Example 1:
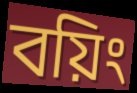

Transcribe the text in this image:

বয়িং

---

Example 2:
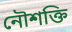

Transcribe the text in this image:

নৌশক্তি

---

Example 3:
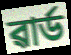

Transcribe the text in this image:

ৱাৰ্ড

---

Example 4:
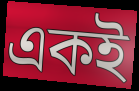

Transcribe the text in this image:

একই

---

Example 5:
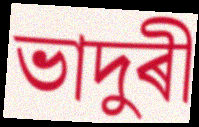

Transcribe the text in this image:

ভাদুৰী